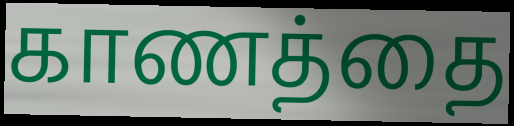
காணத்தை